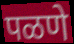
पळणे